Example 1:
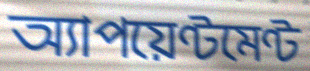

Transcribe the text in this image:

অ্যাপয়েণ্টমেণ্ট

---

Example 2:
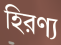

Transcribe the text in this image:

হিরণ্য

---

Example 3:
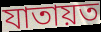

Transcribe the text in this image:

যাতায়ত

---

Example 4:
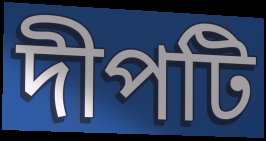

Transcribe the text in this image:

দীপটি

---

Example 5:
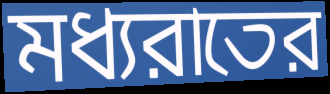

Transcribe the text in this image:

মধ্যরাতের